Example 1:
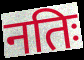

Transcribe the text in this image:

नतिः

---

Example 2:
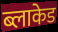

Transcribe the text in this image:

ब्लाकेड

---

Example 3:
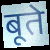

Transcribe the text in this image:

बूते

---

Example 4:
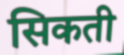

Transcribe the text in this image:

सिकती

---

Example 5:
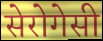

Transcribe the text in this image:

सेरोगेसी